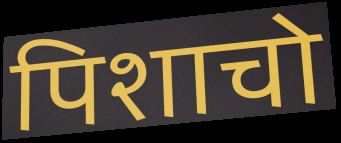
पिशाचो